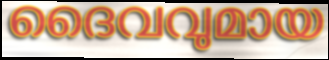
ദൈവവുമായ